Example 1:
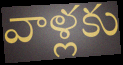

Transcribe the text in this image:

వాళ్లకు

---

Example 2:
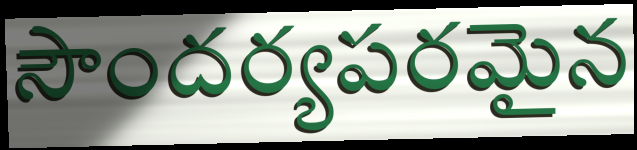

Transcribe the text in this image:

సౌందర్యపరమైన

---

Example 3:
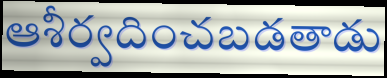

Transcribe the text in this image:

ఆశీర్వదించబడతాడు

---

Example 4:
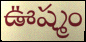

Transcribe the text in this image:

ఊష్మం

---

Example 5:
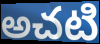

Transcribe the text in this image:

అచటి